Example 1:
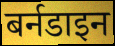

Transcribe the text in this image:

बर्नडाइन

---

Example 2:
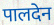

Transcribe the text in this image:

पालदेन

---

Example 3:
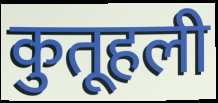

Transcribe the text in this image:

कुतूहली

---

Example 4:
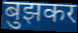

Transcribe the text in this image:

बुझकर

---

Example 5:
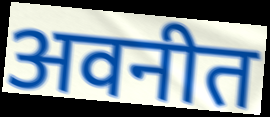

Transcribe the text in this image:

अवनीत